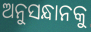
ଅନୁସନ୍ଧାନକୁ